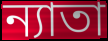
ন্যাতা